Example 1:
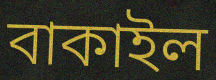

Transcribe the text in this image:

বাকাইল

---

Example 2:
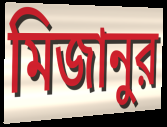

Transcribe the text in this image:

মিজানুর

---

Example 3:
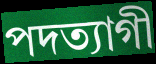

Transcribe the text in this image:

পদত্যাগী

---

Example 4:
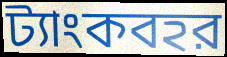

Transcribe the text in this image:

ট্যাংকবহর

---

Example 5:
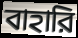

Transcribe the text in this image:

বাহারি